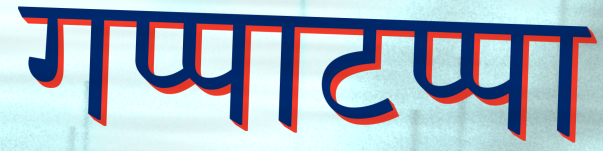
गप्पाटप्पा